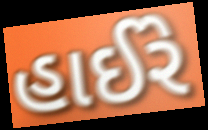
હાઈરે